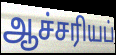
ஆச்சரியப்